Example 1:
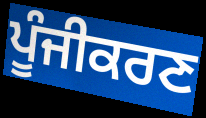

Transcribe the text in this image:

ਪੂੰਜੀਕਰਣ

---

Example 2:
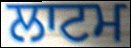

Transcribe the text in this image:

ਲਾਟਮ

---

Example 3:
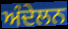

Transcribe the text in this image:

ਅੰਦੇਲਨ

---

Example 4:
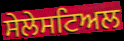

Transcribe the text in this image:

ਸੇਲੇਸਟਿਅਲ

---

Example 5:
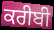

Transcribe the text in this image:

ਕਰੀਬੀ